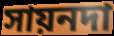
সায়নদা